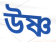
উষ্ণ